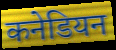
कनेडियन